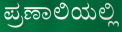
ಪ್ರಣಾಲಿಯಲ್ಲಿ